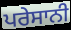
ਪਰੇਸਾਨੀ